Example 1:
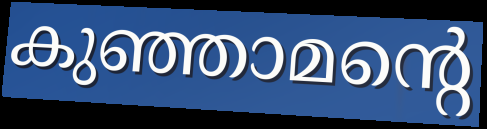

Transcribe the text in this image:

കുഞ്ഞാമന്റെ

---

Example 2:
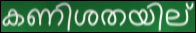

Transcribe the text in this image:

കണിശതയില്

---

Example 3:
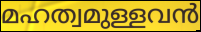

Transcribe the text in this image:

മഹത്വമുള്ളവൻ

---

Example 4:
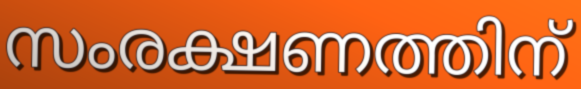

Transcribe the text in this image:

സംരക്ഷണത്തിന്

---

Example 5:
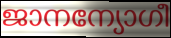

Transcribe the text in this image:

ജാനന്യോഗീ